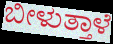
ಬೀಳುತ್ತಾಳೆ